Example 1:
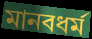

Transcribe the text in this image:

মানবধর্ম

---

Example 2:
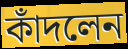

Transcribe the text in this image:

কাঁদলেন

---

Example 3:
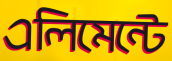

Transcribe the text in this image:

এলিমেন্টে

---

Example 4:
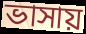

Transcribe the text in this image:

ভাসায়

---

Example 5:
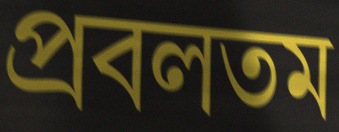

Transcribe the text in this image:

প্রবলতম